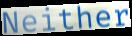
Neither